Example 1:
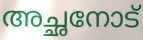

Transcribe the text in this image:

അച്ഛനോട്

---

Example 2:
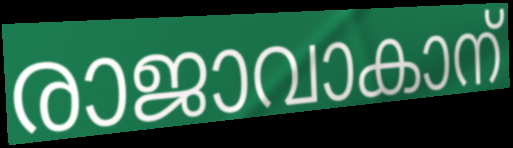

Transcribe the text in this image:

രാജാവാകാന്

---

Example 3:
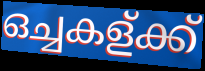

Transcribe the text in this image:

ഒച്ചകള്ക്ക്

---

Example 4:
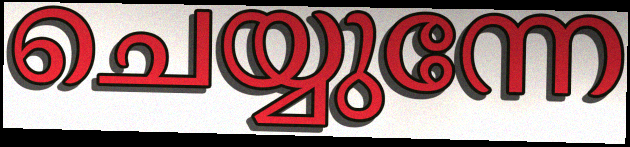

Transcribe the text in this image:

ചെയ്യുന്നേ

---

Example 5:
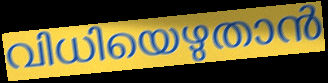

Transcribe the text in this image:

വിധിയെഴുതാൻ